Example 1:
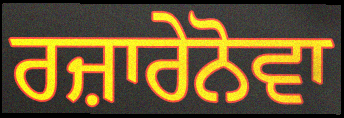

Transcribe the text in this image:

ਰਜ਼ਾਰੇਨੋਵਾ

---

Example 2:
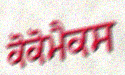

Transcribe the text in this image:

ਕੋਕੋਮੈਕਸ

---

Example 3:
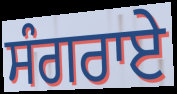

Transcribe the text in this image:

ਸੰਗਰਾਏ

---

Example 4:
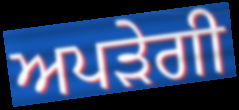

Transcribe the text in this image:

ਅਪੜੇਗੀ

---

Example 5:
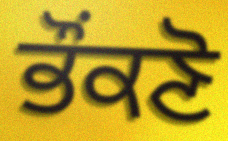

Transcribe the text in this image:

ਭੌਂਕਣੋ